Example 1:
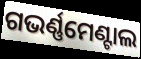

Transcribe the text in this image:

ଗଭର୍ଣ୍ଣମେଣ୍ଟାଲ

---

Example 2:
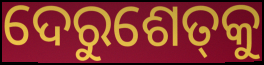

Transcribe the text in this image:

ଦେରୁଶେତ୍‌କୁ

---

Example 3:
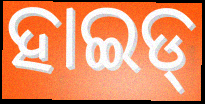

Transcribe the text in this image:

ହାଇଡ୍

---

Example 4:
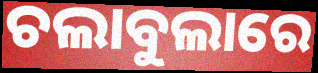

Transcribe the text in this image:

ଚଲାବୁଲାରେ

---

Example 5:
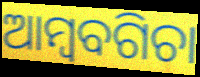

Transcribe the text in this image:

ଆମ୍ବବଗିଚା